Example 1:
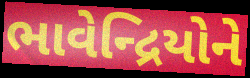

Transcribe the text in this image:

ભાવેન્દ્રિયોને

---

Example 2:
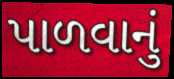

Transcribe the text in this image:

પાળવાનું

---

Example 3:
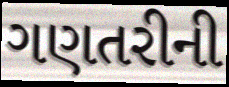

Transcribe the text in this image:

ગણતરીની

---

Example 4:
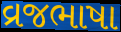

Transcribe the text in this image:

વ્રજભાષા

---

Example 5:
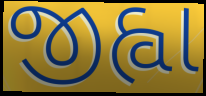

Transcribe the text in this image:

જીહ્વા